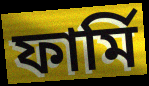
ফার্মি